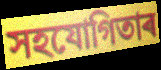
সহযোগিতাৰ